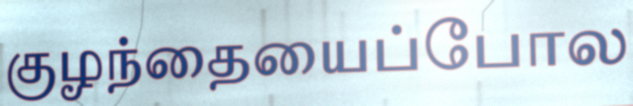
குழந்தையைப்போல